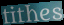
tithes